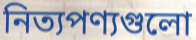
নিত্যপণ্যগুলো